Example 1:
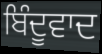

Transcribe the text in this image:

ਬਿੰਦੂਵਾਦ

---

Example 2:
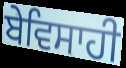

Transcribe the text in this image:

ਬੇਵਿਸਾਹੀ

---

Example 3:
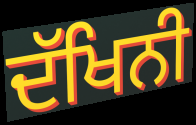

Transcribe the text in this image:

ਦੱਖਿਨੀ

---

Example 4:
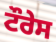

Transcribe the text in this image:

ਟੌਰੇਸ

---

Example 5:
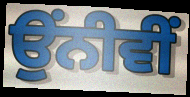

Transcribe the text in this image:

ਉੰਨੀਵੀਂ